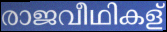
രാജവീഥികള്